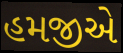
હમજીએ